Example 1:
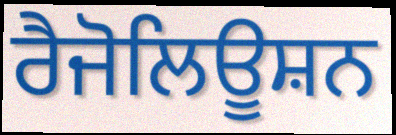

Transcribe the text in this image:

ਰੈਜੋਲਿਊਸ਼ਨ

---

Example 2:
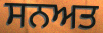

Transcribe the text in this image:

ਸਨਅਤ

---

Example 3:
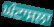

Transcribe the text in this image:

ਘੰਟਾਸਲਾ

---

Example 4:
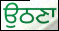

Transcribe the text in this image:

ਉਠਣਾ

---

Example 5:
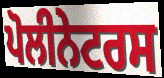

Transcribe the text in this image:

ਪੋਲੀਨੇਟਰਸ